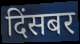
दिंसबर